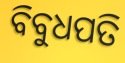
ବିବୁଧପତି